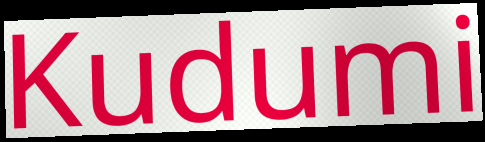
Kudumi